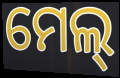
ମେଲ୍